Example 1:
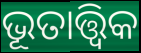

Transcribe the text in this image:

ଭୂତାତ୍ତ୍ୱିକ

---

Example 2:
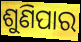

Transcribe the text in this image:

ଶୁଣିପାର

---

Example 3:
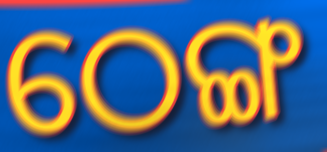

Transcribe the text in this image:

ଠେଙ୍ଗ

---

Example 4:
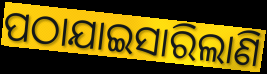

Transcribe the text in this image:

ପଠାଯାଇସାରିଲାଣି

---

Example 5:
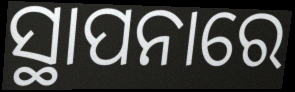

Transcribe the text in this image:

ସ୍ଥାପନାରେ